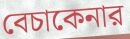
বেচাকেনার